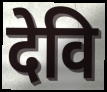
देवि